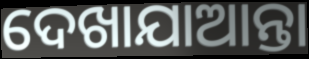
ଦେଖାଯାଆନ୍ତା